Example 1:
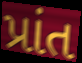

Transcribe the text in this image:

પ્રાંત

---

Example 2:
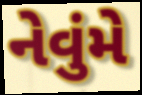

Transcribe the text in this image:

નેવુંમે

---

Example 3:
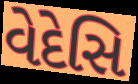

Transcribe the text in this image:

વેદેસિ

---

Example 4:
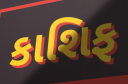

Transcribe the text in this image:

કાશિફ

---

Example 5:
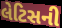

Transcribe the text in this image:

લેટિસની